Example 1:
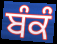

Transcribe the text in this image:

ਬੰਕੰ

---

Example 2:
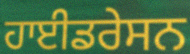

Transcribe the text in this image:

ਹਾਈਡਰੇਸਨ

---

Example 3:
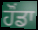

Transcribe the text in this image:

ਹੌਂਡਾ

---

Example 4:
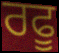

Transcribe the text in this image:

ਰਫੂ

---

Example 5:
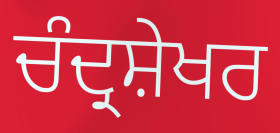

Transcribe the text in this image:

ਚੰਦ੍ਰਸ਼ੇਖਰ